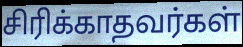
சிரிக்காதவர்கள்